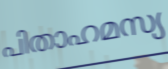
പിതാഹമസ്യ